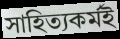
সাহিত্যকর্মই